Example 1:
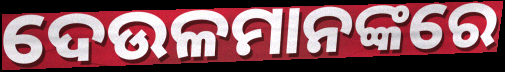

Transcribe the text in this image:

ଦେଉଳମାନଙ୍କରେ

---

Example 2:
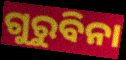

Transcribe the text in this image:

ଗୁରୁବିନା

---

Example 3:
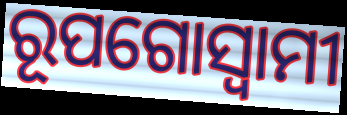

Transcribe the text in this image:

ରୂପଗୋସ୍ୱାମୀ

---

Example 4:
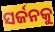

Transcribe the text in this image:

ସର୍ଜନକୁ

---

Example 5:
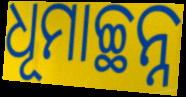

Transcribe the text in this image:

ଧୂମାଚ୍ଛନ୍ନ